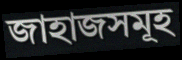
জাহাজসমূহ